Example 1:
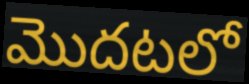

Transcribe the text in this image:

మొదటలో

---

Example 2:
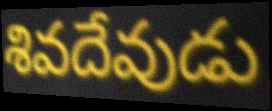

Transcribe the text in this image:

శివదేవుడు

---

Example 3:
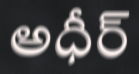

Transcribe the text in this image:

అధీర్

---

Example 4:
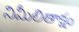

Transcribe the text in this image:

నిమీలితాక్షం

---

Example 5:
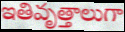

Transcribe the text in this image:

ఇతివృత్తాలుగా